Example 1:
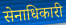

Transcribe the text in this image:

सेनाधिकारी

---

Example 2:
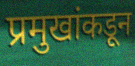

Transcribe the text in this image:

प्रमुखांकडून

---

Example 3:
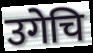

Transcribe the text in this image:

उगेचि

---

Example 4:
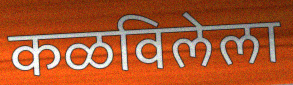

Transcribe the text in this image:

कळविलेला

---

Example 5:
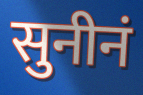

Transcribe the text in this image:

सुनीनं